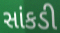
સાંકડી